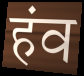
हंव